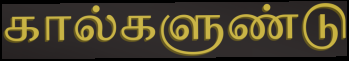
கால்களுண்டு